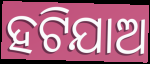
ହଟିଯାଅ